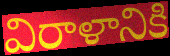
విరాళానికి